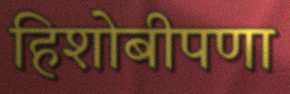
हिशोबीपणा